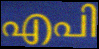
എപി